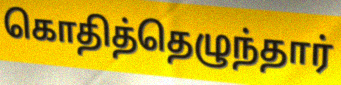
கொதித்தெழுந்தார்